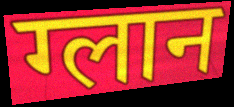
ग्लान